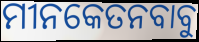
ମୀନକେତନବାବୁ